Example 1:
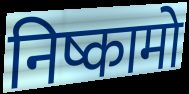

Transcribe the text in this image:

निष्कामो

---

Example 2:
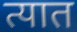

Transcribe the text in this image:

त्यात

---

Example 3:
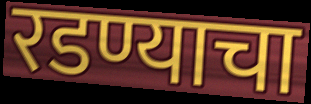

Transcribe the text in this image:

रडण्याचा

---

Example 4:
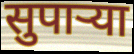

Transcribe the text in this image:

सुपार्‍या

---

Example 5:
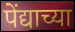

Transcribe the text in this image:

पेंद्याच्या